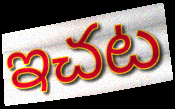
ఇచట